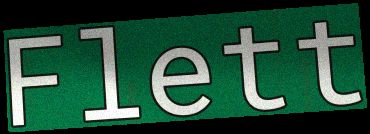
Flett